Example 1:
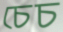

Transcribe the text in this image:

চেচ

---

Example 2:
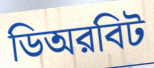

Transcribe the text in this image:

ডিঅরবিট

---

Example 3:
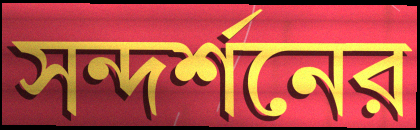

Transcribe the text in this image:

সন্দর্শনের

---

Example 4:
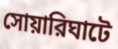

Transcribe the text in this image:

সোয়ারিঘাটে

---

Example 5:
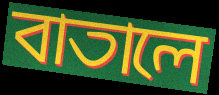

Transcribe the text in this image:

বাতালে